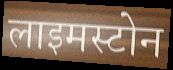
लाइमस्टोन